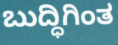
ಬುದ್ಧಿಗಿಂತ